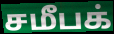
சமீபக்